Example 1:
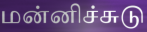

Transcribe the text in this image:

மன்னிச்சுடு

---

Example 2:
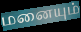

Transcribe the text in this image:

மனையும்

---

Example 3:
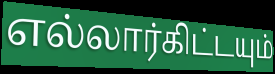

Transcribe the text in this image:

எல்லார்கிட்டயும்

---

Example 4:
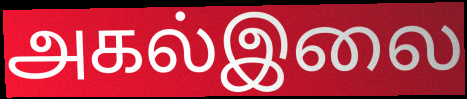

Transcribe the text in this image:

அகல்இலை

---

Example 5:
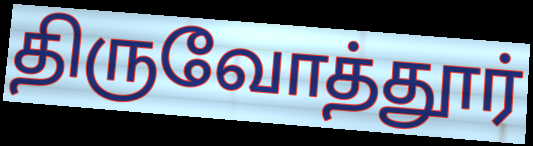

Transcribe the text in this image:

திருவோத்தூர்